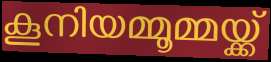
കൂനിയമ്മൂമ്മയ്ക്ക്